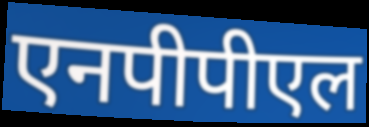
एनपीपीएल